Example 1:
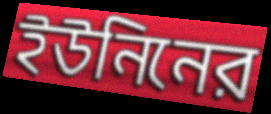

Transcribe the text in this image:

ইউনিনের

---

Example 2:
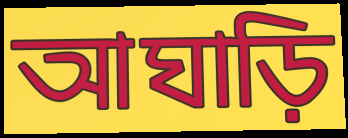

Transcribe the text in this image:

আঘাড়ি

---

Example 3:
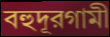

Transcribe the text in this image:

বহুদূরগামী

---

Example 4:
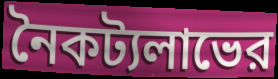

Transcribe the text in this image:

নৈকট্যলাভের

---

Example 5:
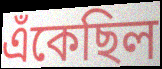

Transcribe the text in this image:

এঁকেছিল